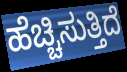
ಹೆಚ್ಚಿಸುತ್ತಿದೆ